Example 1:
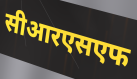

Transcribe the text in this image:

सीआरएसएफ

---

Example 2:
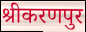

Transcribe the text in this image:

श्रीकरणपुर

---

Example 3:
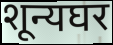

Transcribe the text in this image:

शून्यघर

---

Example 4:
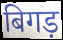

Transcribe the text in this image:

बिगड़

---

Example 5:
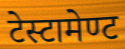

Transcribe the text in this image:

टेस्टामेण्ट